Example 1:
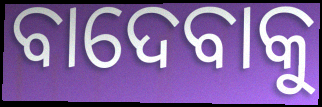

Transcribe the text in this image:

ବାଦେବାକୁ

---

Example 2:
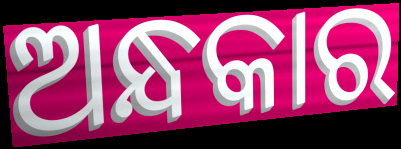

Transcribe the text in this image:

ଅନ୍ଧକାର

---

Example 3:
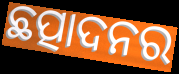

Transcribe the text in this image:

ଛତ୍ପାଦନର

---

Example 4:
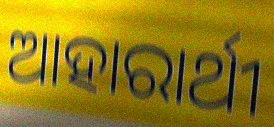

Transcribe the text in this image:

ଆହାରାର୍ଥୀ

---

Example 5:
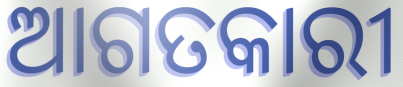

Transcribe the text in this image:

ଆଗତକାରୀ